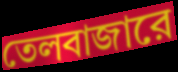
তেলবাজারে